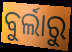
ବୁର୍ଲାରୁ